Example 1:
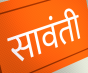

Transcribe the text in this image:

सावंती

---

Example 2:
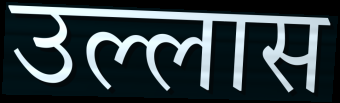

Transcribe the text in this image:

उल्लास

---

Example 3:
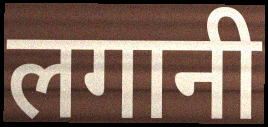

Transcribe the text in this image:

लगानी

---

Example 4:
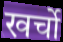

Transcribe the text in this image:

खर्चो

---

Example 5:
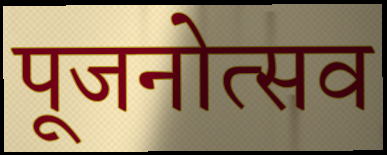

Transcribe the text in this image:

पूजनोत्सव